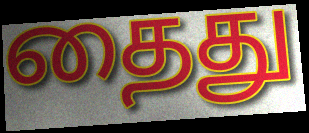
தைது